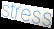
stress